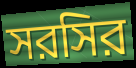
সরসির